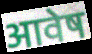
आवेष